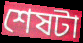
শেষটা